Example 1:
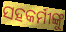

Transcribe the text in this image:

ସହକର୍ମୀଙ୍କୁ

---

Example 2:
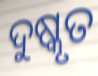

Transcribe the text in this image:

ଦୁଷ୍କୃତ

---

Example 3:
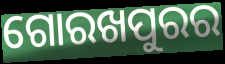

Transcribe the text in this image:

ଗୋରଖପୁରର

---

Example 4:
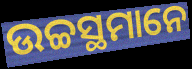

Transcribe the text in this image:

ଉଚ୍ଚସ୍ଥମାନେ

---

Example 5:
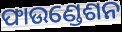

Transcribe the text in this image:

ଫାଉଣ୍ଡେଶନ